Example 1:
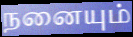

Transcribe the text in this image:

நனையும்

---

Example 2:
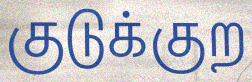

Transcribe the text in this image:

குடுக்குற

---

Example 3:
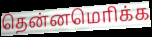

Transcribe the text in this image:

தென்னமெரிக்க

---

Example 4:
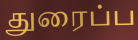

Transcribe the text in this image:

துரைப்ப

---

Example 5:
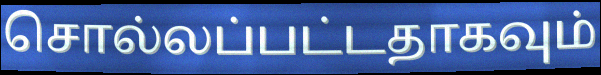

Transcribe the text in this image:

சொல்லப்பட்டதாகவும்